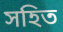
সহিত